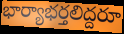
భార్యాభర్తలిద్దరూ